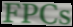
FPCs